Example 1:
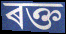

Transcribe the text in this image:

ৰক্ত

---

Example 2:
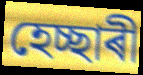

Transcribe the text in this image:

হেচ্ছাৰী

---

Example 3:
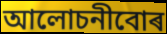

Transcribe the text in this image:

আলোচনীবোৰ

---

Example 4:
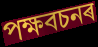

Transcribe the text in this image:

পক্ষবচনৰ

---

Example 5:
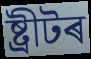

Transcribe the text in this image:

ষ্ট্ৰীটৰ